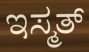
ಇಸ್ಮತ್